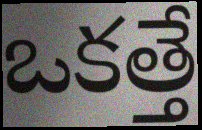
ఒకత్తే